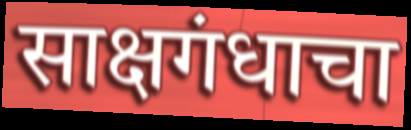
साक्षगंधाचा